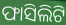
ଫାସିଲିଟି